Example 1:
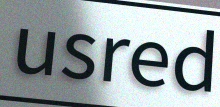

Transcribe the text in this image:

usred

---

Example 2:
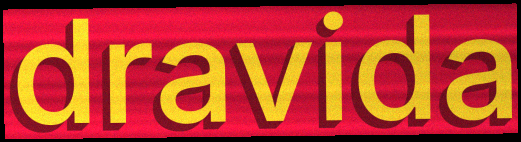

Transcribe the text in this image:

dravida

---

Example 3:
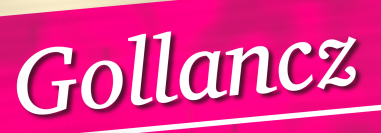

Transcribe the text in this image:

Gollancz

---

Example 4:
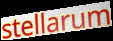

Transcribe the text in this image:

stellarum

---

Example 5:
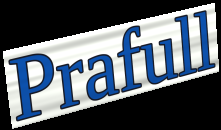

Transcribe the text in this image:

Prafull